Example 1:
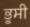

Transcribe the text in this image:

ਭੂਸੀ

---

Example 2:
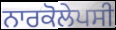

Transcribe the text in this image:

ਨਾਰਕੋਲੇਪਸੀ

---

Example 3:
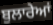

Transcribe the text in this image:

ਬੁਲਾਰੇਆਂ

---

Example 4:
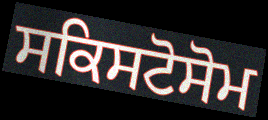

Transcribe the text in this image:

ਸਕਿਸਟੋਸੋਮ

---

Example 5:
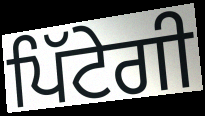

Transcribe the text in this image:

ਪਿੱਟੇਗੀ